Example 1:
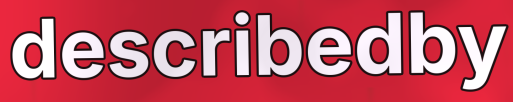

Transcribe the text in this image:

describedby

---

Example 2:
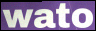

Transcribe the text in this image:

wato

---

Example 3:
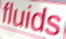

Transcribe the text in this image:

fluids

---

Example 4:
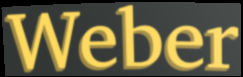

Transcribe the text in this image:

Weber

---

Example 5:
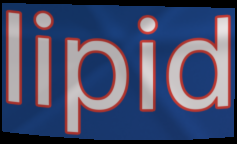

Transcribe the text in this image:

lipid